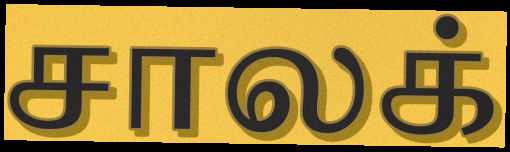
சாலக்